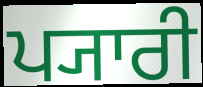
ਪ੍ਯਾਰੀ